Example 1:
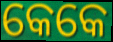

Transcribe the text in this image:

କେକେ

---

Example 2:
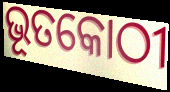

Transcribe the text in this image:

ଭୂତକୋଠୀ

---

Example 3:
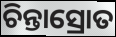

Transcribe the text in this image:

ଚିନ୍ତାସ୍ରୋତ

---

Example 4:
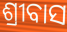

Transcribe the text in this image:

ଶ୍ରୀବାସ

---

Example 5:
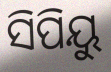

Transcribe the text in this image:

ସିପିୟୁ